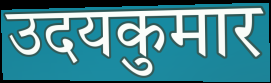
उदयकुमार